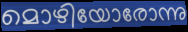
മൊഴിയോരോന്നു